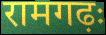
रामगढ़ः